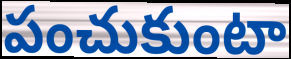
పంచుకుంటా